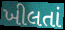
ખીલતાં